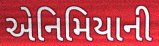
એનિમિયાની